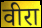
वीरा